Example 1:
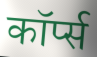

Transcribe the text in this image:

कॉर्प्स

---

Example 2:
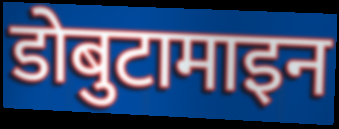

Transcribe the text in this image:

डोबुटामाइन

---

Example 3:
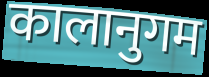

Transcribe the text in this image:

कालानुगम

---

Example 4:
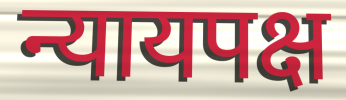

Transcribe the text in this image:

न्यायपक्ष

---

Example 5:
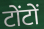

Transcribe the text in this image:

टोंटों